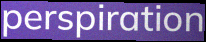
perspiration